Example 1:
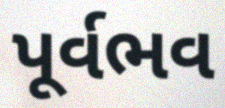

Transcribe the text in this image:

પૂર્વભવ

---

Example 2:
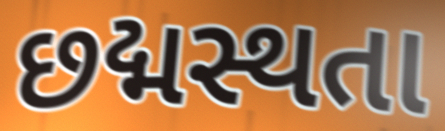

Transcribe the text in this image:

છદ્મસ્થતા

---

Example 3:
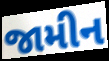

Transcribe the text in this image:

જામીન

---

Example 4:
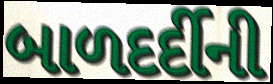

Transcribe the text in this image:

બાળદર્દીની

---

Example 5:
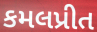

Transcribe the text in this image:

કમલપ્રીત